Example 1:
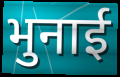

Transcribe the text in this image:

भुनाई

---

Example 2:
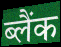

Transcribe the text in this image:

ब्लैंक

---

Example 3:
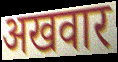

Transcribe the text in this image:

अखवार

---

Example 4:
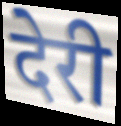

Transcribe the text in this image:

देरी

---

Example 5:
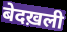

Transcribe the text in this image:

बेदख़ली